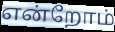
என்றோம்